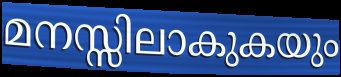
മനസ്സിലാകുകയും